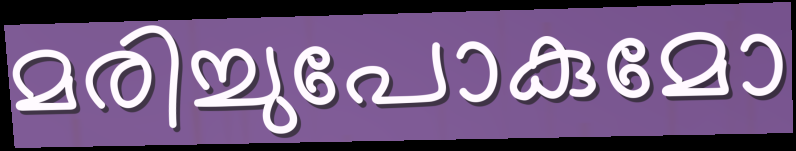
മരിച്ചുപോകുമോ